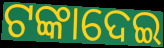
ଟଙ୍କାଦେଇ